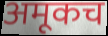
अमूकच